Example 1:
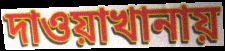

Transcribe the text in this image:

দাওয়াখানায়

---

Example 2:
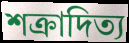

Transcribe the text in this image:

শক্রাদিত্য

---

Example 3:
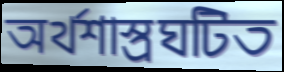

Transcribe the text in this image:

অর্থশাস্ত্রঘটিত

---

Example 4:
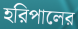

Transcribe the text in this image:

হরিপালের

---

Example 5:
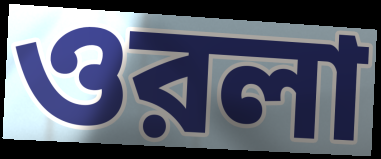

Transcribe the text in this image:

ওরলা